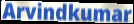
Arvindkumar